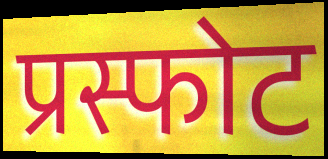
प्रस्फोट